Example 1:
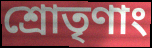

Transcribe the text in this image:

শ্রোতৃণাং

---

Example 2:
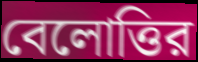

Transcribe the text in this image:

বেলোত্তির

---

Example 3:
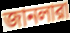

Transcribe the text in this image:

জানলারা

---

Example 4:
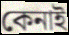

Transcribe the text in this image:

কেনাই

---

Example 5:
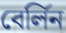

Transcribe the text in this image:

বের্লিন